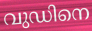
വുഡിനെ